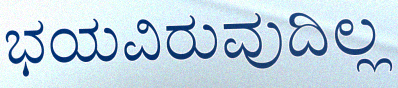
ಭಯವಿರುವುದಿಲ್ಲ